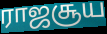
ராஜசூய